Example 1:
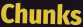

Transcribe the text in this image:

Chunks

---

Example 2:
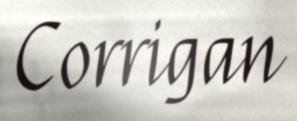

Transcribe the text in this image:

Corrigan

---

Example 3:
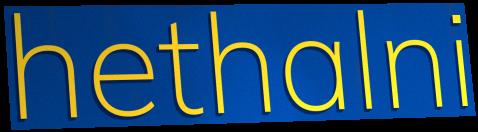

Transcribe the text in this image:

hethalni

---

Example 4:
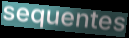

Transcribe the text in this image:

sequentes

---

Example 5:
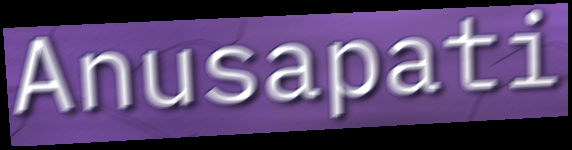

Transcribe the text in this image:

Anusapati